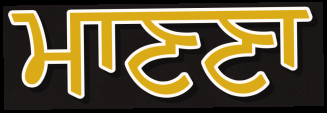
ਮਾਣਣਾ